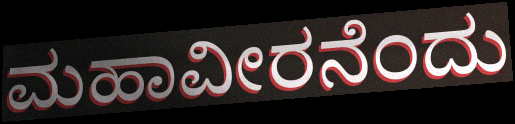
ಮಹಾವೀರನೆಂದು